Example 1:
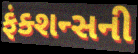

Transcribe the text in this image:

ફંક્શન્સની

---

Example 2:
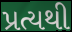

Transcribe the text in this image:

પ્રત્યથી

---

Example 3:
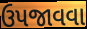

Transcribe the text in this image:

ઉપજાવવા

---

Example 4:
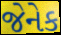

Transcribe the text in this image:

જેનેક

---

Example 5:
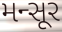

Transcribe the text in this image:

મન્સૂર